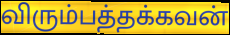
விரும்பத்தக்கவன்